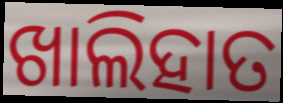
ଖାଲିହାତ